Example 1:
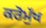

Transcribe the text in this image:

ਕਰੋਮੁੱਖ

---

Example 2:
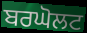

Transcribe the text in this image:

ਬਰਘੋਲਟ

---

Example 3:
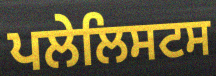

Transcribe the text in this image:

ਪਲੇਲਿਸਟਸ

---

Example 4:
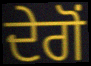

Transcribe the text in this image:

ਦੇਗੋਂ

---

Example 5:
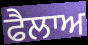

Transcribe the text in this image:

ਫੈਲਾਅ